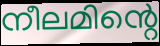
നീലമിന്റെ